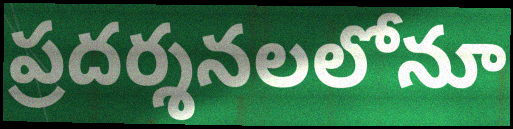
ప్రదర్శనలలోనూ